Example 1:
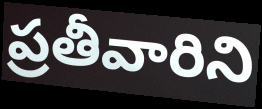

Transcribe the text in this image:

ప్రతీవారిని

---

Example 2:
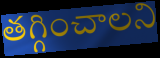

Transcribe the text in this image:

తగ్గించాలని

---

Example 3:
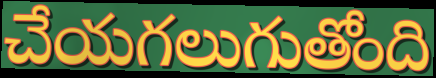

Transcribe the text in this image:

చేయగలుగుతోంది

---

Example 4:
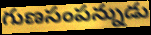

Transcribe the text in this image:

గుణసంపన్నుడు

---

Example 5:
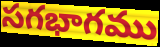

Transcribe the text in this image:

సగభాగము